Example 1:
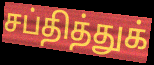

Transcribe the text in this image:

சப்தித்துக்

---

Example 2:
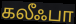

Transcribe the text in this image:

கலீஃபா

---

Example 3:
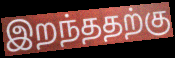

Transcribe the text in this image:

இறந்ததற்கு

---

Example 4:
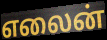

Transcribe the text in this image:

எலைன்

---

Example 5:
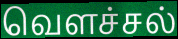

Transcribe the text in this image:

வெளச்சல்